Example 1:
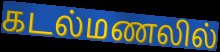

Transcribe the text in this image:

கடல்மணலில்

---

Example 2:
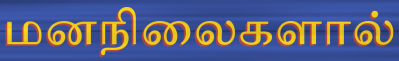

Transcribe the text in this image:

மனநிலைகளால்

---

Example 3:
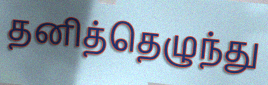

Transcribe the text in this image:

தனித்தெழுந்து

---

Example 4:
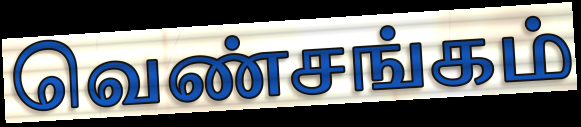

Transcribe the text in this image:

வெண்சங்கம்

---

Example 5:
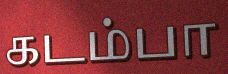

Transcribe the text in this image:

கடம்பா